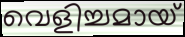
വെളിച്ചമായ്